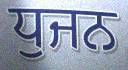
ਧੁਜਨ